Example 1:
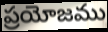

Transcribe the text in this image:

ప్రయోజము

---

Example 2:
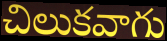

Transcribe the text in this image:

చిలుకవాగు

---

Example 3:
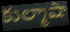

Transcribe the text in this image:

కుల్మాషా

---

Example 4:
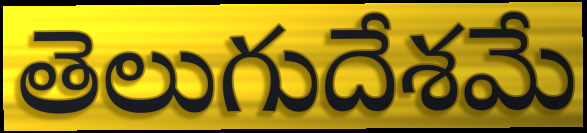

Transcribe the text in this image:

తెలుగుదేశమే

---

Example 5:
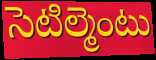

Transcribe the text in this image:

సెటిల్మెంటు